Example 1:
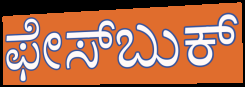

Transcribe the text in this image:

ಫೇಸ್‌ಬುಕ್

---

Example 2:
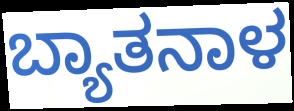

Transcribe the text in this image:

ಬ್ಯಾತನಾಳ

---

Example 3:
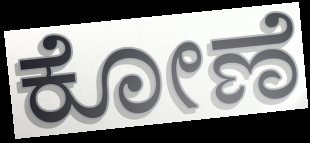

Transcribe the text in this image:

ಕೋಣೆ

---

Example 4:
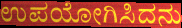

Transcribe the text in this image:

ಉಪಯೋಗಿಸಿದನು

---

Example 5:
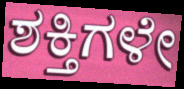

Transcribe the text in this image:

ಶಕ್ತಿಗಳೇ